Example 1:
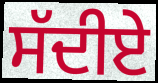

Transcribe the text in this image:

ਸੱਦੀਏ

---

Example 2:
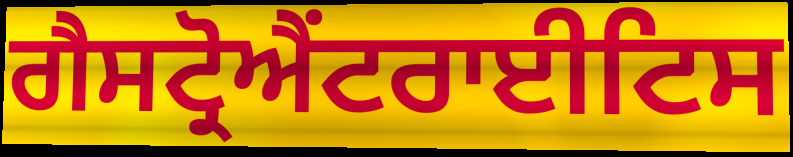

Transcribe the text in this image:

ਗੈਸਟ੍ਰੋਐਂਟਰਾਈਟਿਸ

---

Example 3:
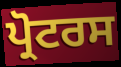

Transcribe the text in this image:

ਪ੍ਰੋਟਰਸ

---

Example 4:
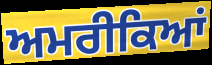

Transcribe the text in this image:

ਅਮਰੀਕਿਆਂ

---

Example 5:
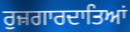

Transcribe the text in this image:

ਰੁਜ਼ਗਾਰਦਾਤਿਆਂ